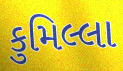
કુમિલ્લા